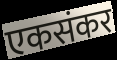
एकसंकर